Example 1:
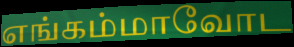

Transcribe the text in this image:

எங்கம்மாவோட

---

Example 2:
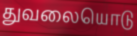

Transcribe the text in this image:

துவலையொடு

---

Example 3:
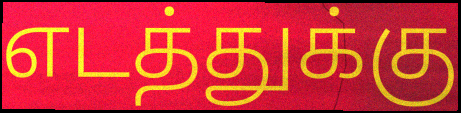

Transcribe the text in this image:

எடத்துக்கு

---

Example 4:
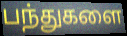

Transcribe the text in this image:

பந்துகளை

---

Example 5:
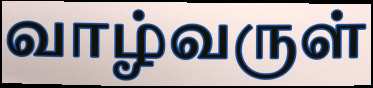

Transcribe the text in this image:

வாழ்வருள்